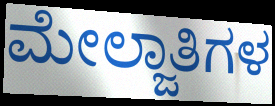
ಮೇಲ್ಜಾತಿಗಳ